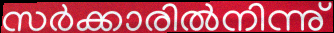
സർക്കാരിൽനിന്നു്